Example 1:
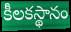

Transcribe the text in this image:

కీలకస్థానం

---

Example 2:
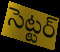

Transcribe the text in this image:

సెట్టర్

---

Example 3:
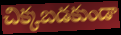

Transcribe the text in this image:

చిక్కబడకుండా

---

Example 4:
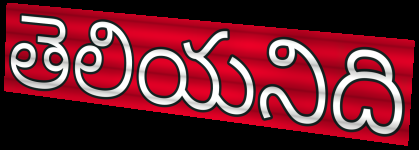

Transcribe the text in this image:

తెలియనిది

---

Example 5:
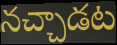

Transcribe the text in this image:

నచ్చాడట